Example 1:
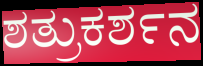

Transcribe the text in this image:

ಶತ್ರುಕರ್ಶನ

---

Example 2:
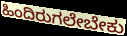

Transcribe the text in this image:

ಹಿಂದಿರುಗಲೇಬೇಕು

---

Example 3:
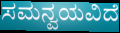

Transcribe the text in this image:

ಸಮನ್ವಯವಿದೆ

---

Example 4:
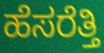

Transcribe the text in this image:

ಹೆಸರೆತ್ತಿ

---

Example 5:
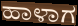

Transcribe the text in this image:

ಹಾಳಾಗ